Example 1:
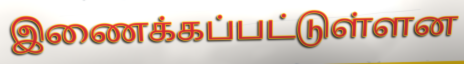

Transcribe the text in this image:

இணைக்கப்பட்டுள்ளன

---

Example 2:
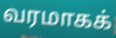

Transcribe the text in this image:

வரமாகக்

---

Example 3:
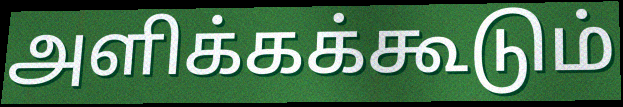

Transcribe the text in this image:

அளிக்கக்கூடும்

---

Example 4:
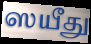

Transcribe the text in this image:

ஸயீது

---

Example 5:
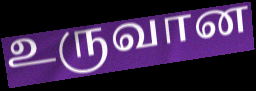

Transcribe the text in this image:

உருவான